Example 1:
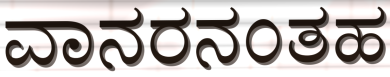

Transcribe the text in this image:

ವಾನರನಂತಹ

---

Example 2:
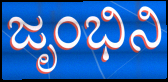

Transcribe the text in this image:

ಜೃಂಭಿನಿ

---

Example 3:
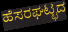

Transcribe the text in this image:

ಹೆಸರಘಟ್ಟದ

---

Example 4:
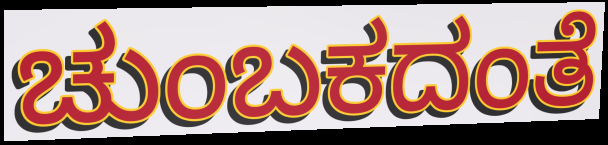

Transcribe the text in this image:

ಚುಂಬಕದಂತೆ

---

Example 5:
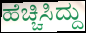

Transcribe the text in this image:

ಹೆಚ್ಚಿಸಿದ್ದು